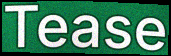
Tease